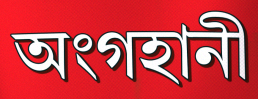
অংগহানী